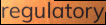
regulatory